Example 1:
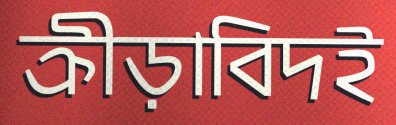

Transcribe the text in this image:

ক্রীড়াবিদই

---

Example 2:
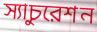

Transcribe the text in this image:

স্যাচুরেশন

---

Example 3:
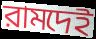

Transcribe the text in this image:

রামদেই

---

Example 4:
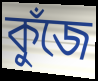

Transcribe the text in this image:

কুঁজে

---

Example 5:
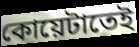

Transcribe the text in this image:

কোয়েটাতেই